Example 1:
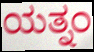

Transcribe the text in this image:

ಯತ್ನಂ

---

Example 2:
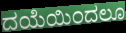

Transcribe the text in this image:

ದಯೆಯಿಂದಲೂ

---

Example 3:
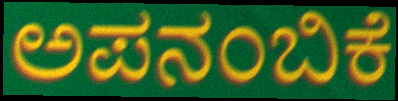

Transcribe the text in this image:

ಅಪನಂಬಿಕೆ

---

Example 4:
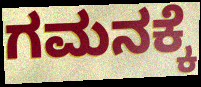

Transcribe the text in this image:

ಗಮನಕ್ಕೆ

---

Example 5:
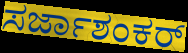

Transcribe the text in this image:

ಸರ್ಜಾಶಂಕರ್